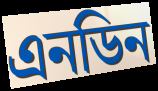
এনডিন